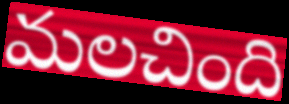
మలచింది